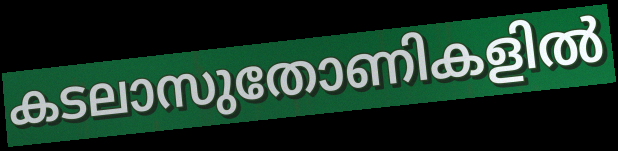
കടലാസുതോണികളിൽ